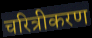
चरित्रीकरण